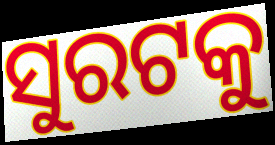
ସୁରଟକୁ